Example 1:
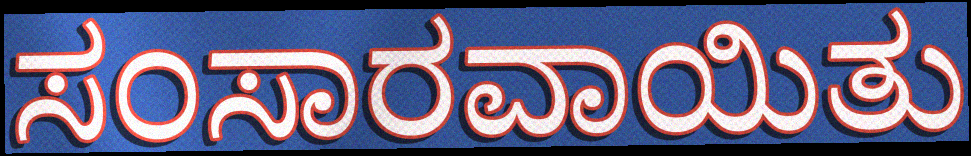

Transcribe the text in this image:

ಸಂಸಾರವಾಯಿತು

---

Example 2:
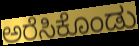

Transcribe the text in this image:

ಅರೆಸಿಕೊಂಡು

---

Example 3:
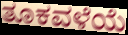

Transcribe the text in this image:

ತೂಕವಳೆಯೆ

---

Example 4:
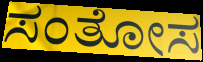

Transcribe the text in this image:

ಸಂತೋಸ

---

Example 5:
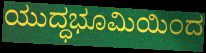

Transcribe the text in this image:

ಯುದ್ಧಭೂಮಿಯಿಂದ